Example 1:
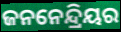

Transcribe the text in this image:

ଜନନେନ୍ଦ୍ରିୟର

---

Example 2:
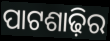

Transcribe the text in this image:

ପାଟଶାଢ଼ିର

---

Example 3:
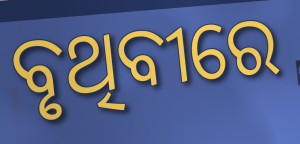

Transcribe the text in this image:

ବୃଥିବୀରେ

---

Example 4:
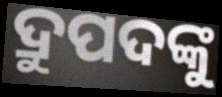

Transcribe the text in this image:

ଦ୍ରୁପଦଙ୍କୁ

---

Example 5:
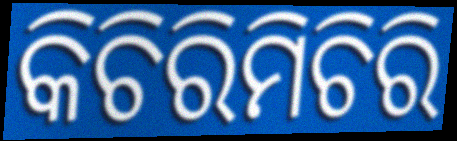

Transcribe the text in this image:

କିଚିରିମିଚିରି